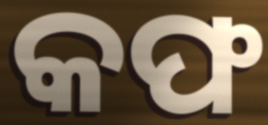
କଫ